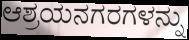
ಆಶ್ರಯನಗರಗಳನ್ನು